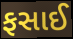
ફસાઈ